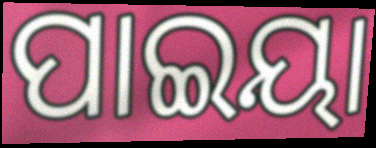
ପାଇୟା